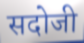
सदोजी